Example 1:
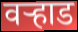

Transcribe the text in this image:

वर्‍हाड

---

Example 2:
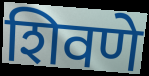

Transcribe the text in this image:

शिवणे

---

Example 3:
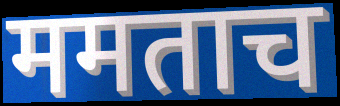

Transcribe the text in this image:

ममताच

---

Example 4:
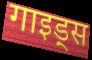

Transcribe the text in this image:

गाइड्स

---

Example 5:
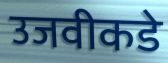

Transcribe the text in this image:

उजवीकडे